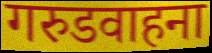
गरुडवाहना